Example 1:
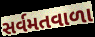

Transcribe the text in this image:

સર્વમતવાળા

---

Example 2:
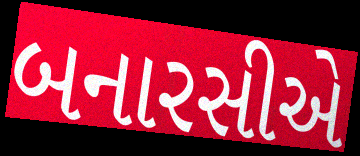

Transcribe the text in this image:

બનારસીએ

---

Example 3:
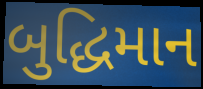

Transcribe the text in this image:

બુદ્ધિમાન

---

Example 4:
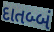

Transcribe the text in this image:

દાતબ્બં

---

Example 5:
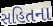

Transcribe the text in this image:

સહિતના